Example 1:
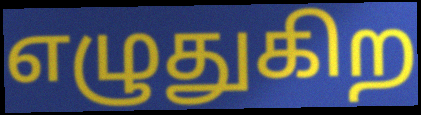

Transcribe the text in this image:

எழுதுகிற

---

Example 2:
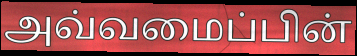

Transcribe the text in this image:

அவ்வமைப்பின்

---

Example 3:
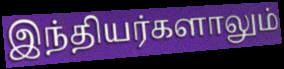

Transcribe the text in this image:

இந்தியர்களாலும்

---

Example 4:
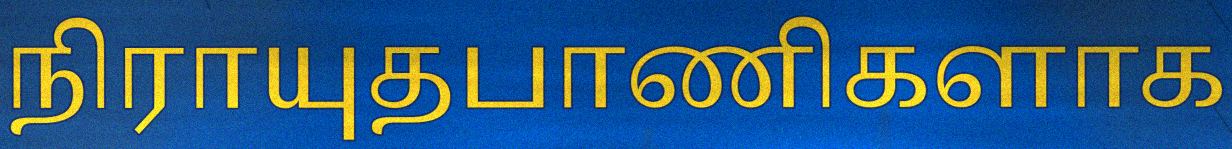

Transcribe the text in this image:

நிராயுதபாணிகளாக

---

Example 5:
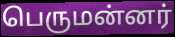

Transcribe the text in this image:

பெருமன்னர்